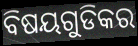
ବିଷୟଗୁଡିକର